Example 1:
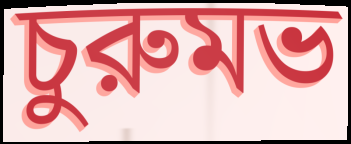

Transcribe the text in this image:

চুরুমভ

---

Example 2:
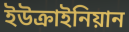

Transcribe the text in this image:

ইউক্রাইনিয়ান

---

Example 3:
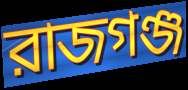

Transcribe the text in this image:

রাজগঞ্জ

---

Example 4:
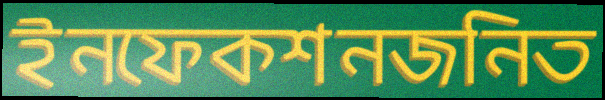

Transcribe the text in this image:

ইনফেকশনজনিত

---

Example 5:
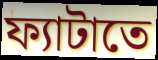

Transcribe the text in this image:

ফ্যাটাতে